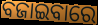
ବଜାଇବାରେ